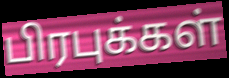
பிரபுக்கள்